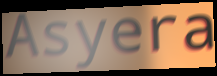
Asyera